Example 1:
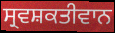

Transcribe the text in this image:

ਸ੍ਰਵਸ਼ਕਤੀਵਾਨ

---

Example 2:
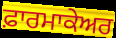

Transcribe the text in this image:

ਫ਼ਾਰਮਾਕੇਅਰ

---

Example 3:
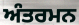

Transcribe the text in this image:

ਅੰਤਰਮਨ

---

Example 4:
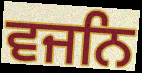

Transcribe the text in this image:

ਵਜਨਿ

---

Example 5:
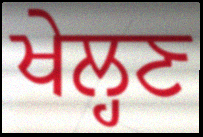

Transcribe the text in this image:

ਖੇਲ੍ਹਣ